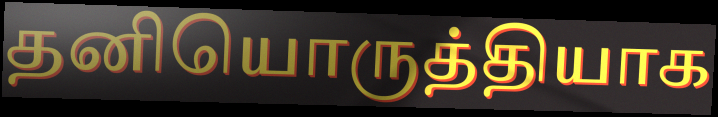
தனியொருத்தியாக